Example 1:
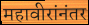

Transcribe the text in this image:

महावीरांनंतर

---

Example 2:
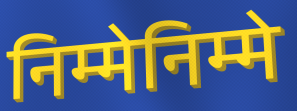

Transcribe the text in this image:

निम्मेनिम्मे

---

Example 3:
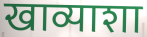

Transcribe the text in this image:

खाव्याशा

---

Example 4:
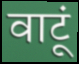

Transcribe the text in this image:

वाटूं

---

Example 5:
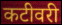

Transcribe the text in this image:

कटीवरी